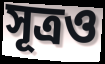
সূত্ৰও